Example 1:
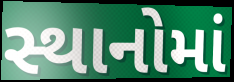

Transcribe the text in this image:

સ્થાનોમાં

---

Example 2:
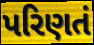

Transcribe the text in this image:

પરિણતં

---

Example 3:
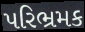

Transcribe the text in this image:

પરિભ્રમક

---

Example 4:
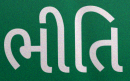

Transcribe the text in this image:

ભીતિ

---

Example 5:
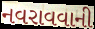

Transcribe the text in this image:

નવરાવવાની